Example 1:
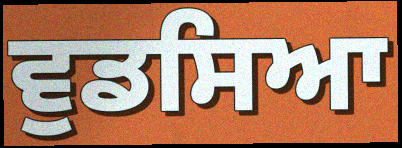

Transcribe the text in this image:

ਵੁਡਸਿਆ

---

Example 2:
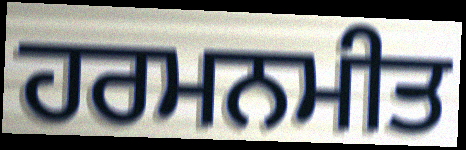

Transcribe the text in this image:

ਹਰਮਨਮੀਤ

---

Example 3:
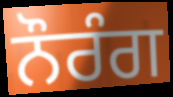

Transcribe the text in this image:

ਨੌਰੰਗ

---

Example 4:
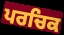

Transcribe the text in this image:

ਪਰਚਿਕ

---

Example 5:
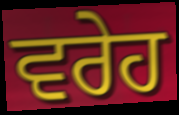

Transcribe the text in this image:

ਵਰੇਹ